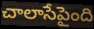
చాలాసేపైంది